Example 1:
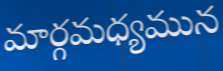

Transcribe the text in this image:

మార్గమధ్యమున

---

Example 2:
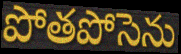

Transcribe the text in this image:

పోతపోసెను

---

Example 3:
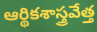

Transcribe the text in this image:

ఆర్థికశాస్త్రవేత్త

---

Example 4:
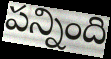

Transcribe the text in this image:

పన్నింది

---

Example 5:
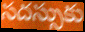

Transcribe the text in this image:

సదస్సుకు